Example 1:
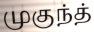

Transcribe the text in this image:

முகுந்த்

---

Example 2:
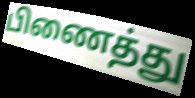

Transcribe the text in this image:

பிணைத்து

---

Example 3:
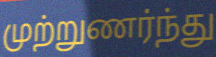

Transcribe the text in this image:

முற்றுணர்ந்து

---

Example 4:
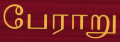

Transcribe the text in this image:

பேராறு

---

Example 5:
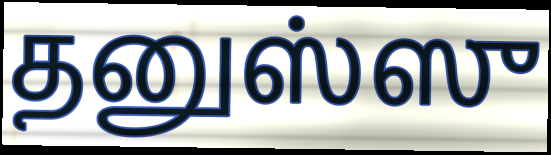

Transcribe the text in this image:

தனுஸ்ஸு